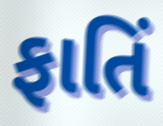
ફાતિં